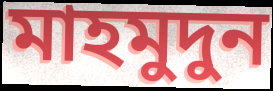
মাহমুদুন